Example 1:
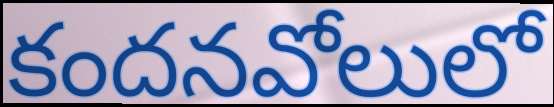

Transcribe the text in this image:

కందనవోలులో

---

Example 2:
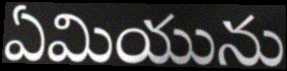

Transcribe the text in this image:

ఏమియును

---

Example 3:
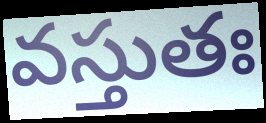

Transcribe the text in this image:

వస్తుతః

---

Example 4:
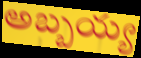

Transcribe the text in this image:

అబ్బయ్య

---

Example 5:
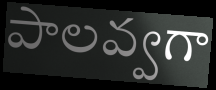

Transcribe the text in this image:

పాలవ్వగా